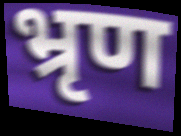
भ्रृण